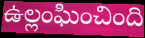
ఉల్లంఘించింది